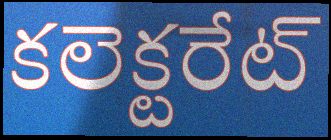
కలెక్టరేట్